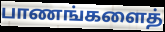
பாணங்களைத்